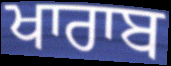
ਖਾਰਾਬ